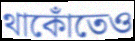
থাকোঁতেও